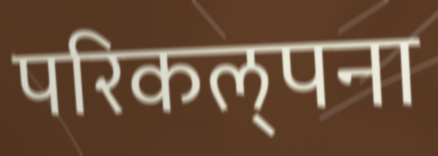
परिकल्पना